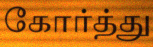
கோர்த்து